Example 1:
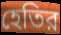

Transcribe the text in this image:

হেতির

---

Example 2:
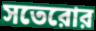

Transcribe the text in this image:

সতেরোর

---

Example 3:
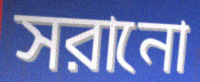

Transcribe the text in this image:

সরানো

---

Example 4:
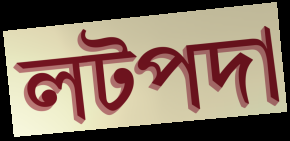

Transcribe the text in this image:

লটপদা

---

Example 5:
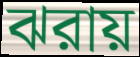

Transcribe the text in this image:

ঝরায়